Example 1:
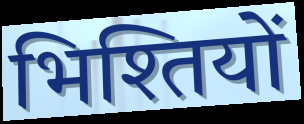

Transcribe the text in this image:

भिश्तियों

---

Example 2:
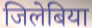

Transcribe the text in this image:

जिलेबिया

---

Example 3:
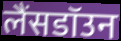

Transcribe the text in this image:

लैंसडॉउन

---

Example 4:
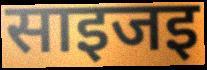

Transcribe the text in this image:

साइजइ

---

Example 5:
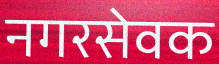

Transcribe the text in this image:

नगरसेवक